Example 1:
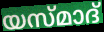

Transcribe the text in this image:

യസ്മാദ്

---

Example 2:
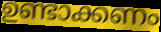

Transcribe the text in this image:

ഉണ്ടാക്കണം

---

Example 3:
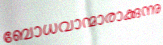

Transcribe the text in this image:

ബോധവാന്മാരാക്കുന്നു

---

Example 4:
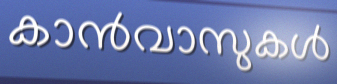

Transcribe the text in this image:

കാൻവാസുകൾ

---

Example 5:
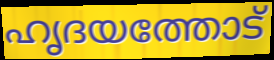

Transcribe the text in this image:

ഹൃദയത്തോട്